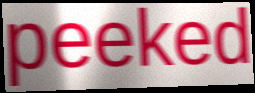
peeked